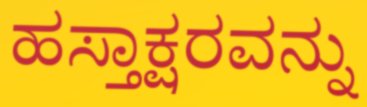
ಹಸ್ತಾಕ್ಷರವನ್ನು